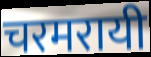
चरमरायी